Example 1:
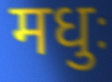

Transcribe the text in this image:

मधुः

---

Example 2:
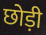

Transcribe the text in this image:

छोड़ी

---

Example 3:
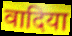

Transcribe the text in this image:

वादिया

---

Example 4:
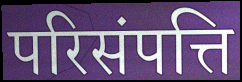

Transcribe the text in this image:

परिसंपत्ति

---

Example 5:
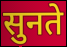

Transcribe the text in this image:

सुनते